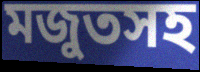
মজুতসহ